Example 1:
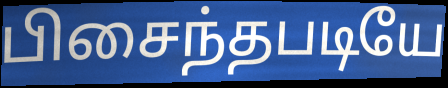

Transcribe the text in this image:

பிசைந்தபடியே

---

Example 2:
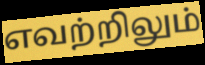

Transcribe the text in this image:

எவற்றிலும்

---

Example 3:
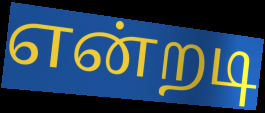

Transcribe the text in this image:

என்றடி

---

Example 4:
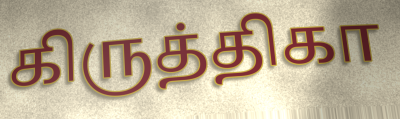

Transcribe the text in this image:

கிருத்திகா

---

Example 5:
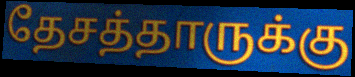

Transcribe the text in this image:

தேசத்தாருக்கு